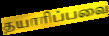
தயாரிப்பவை